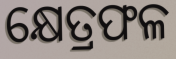
କ୍ଷେତ୍ରଫଳ